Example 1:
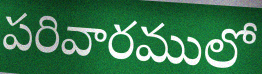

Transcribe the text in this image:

పరివారములో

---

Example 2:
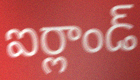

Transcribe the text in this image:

ఐర్లాండ్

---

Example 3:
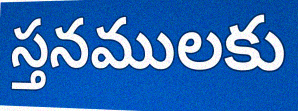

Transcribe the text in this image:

స్తనములకు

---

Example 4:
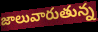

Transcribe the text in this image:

జాలువారుతున్న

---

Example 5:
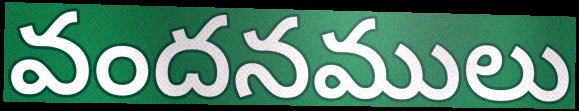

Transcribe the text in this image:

వందనములు